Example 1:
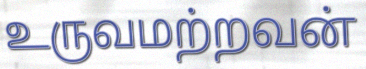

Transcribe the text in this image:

உருவமற்றவன்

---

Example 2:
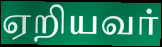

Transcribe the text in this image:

ஏறியவர்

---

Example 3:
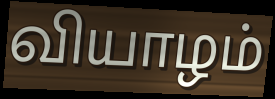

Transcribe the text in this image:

வியாழம்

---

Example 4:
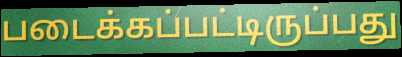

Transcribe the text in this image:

படைக்கப்பட்டிருப்பது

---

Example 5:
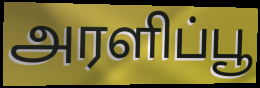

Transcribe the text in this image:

அரளிப்பூ